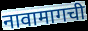
नावामागची